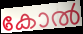
കോൽ